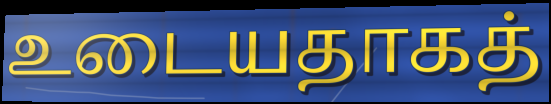
உடையதாகத்